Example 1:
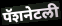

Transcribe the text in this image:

पॅशनेटली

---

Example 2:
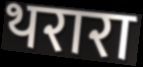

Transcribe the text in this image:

थरारा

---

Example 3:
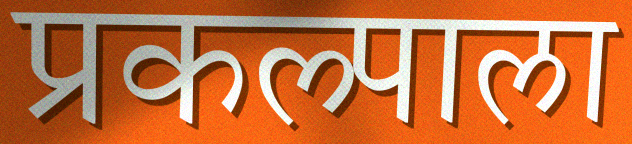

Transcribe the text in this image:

प्रकल्पाला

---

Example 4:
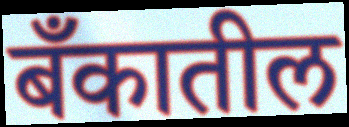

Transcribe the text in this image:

बँकातील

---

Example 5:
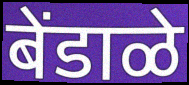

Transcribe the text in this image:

बेंडाळे